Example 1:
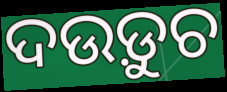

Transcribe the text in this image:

ଦଉଡ଼ୁଚ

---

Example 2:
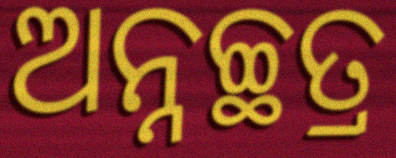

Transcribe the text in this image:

ଅନ୍ନଚ୍ଛତ୍ର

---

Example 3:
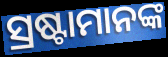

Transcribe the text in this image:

ସ୍ରଷ୍ଟାମାନଙ୍କ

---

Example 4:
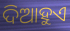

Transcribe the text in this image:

ଦିଆହୁଏ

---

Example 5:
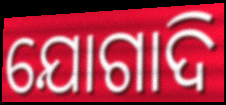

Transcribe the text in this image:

ଯୋଗାଦି